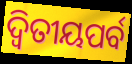
ଦ୍ୱିତୀୟପର୍ବ